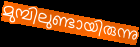
മുമ്പിലുണ്ടായിരുന്നു